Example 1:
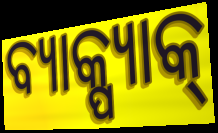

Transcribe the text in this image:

ବ୍ୟାକ୍ପ୍ୟାକ୍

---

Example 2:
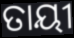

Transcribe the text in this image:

ତାୟୀ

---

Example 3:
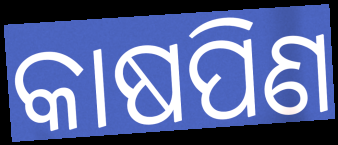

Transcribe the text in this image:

କାଷପିଣ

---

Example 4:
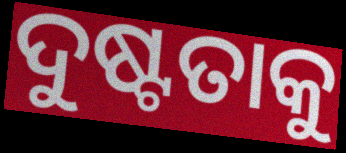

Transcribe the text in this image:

ଦୁଷ୍ଟତାକୁ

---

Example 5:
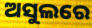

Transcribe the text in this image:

ଅସୁଲରେ